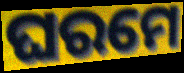
ଘରମେ